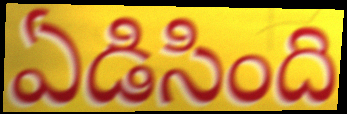
ఏడిసింది